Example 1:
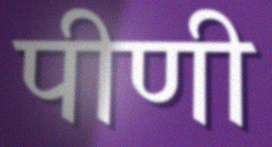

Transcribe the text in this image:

पीणी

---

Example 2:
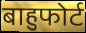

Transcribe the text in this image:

बाहुफोर्ट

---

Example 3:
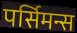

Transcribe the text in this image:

पर्सिमन्स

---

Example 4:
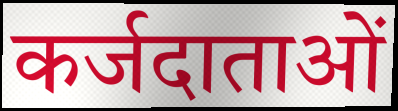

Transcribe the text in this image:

कर्जदाताओं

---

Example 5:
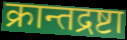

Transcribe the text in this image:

क्रान्तद्रष्टा